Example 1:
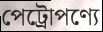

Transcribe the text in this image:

পেট্রোপণ্যে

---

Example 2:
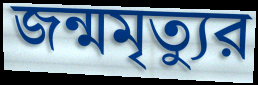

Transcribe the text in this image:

জন্মমৃত্যুর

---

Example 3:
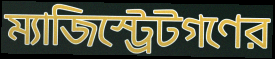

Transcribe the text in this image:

ম্যাজিস্ট্রেটগণের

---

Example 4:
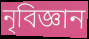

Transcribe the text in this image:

নৃবিজ্ঞান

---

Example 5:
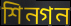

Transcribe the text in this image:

শিনগন